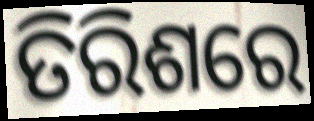
ତିରିଶରେ